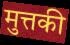
मुत्तकी